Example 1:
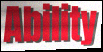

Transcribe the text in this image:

Ability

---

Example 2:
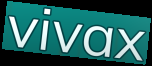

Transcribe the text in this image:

vivax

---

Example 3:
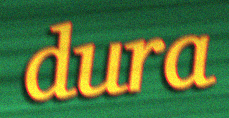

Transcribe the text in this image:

dura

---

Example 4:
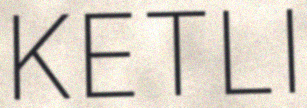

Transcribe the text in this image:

KETLI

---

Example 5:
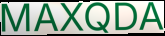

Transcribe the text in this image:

MAXQDA